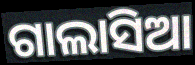
ଗାଲାସିଆ